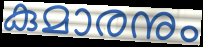
കുമാരനും